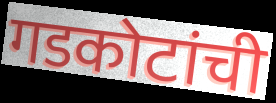
गडकोटांची